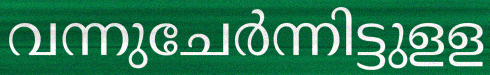
വന്നുചേർന്നിട്ടുളള